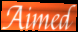
Aimed